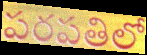
పరపతిలో